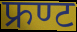
फ्रण्ट